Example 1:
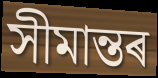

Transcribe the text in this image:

সীমান্তৰ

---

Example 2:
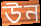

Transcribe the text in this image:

উন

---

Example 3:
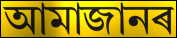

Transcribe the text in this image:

আমাজানৰ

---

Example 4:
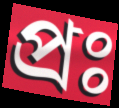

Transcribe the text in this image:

প্ৰঃ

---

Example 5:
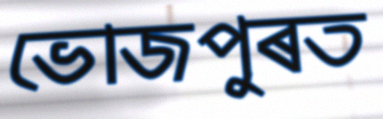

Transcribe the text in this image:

ভোজপুৰত